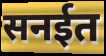
सनईत